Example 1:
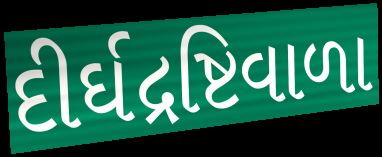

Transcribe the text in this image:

દીર્ઘદ્રષ્ટિવાળા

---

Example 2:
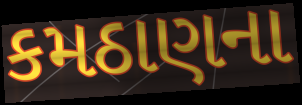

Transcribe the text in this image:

કમઠાણના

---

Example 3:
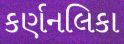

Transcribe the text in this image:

કર્ણનલિકા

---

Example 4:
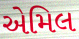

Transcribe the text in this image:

એમિલ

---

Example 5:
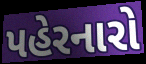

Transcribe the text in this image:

પહેરનારો